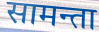
सामन्ता